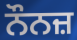
ਨੌਨਜ਼